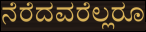
ನೆರೆದವರೆಲ್ಲರೂ